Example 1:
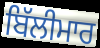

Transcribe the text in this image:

ਬਿੱਲੀਮਾਰ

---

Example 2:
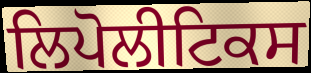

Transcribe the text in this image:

ਲਿਪੋਲੀਟਿਕਸ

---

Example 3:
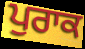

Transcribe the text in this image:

ਪੁਰਾਕ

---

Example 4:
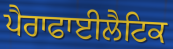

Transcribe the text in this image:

ਪੈਰਾਫਾਈਲੈਟਿਕ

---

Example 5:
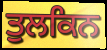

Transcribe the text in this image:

ਤੁਲਕਿਨ